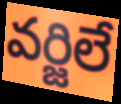
వర్జిలే